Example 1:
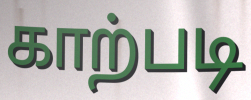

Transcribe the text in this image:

காற்படி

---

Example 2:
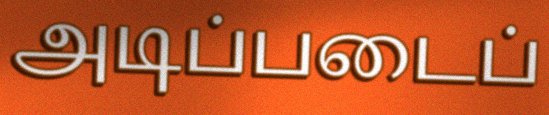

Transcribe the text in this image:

அடிப்படைப்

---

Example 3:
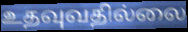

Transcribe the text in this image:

உதவுவதில்லை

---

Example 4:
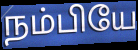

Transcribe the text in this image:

நம்பியே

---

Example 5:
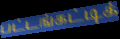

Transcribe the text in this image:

பட்டங்கட்டிக்